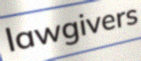
lawgivers